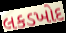
લકડખોદ